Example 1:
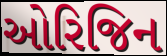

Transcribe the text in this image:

ઓરિજિન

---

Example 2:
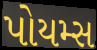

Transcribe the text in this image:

પોયમ્સ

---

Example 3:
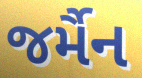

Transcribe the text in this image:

જર્મૈન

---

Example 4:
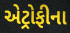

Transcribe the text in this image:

એટ્રોફીના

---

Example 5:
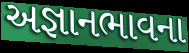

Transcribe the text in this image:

અજ્ઞાનભાવના